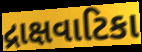
દ્રાક્ષવાટિકા